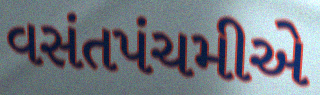
વસંતપંચમીએ